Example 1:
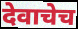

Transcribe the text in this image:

देवाचेच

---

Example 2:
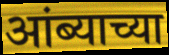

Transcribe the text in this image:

आंब्याच्या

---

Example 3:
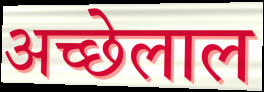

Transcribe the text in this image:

अच्छेलाल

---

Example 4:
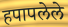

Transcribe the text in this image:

हपापलेले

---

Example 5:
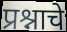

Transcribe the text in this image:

प्रश्नाचे